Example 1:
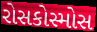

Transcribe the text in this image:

રોસકોસ્મોસ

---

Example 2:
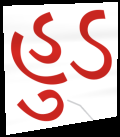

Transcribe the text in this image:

હુડ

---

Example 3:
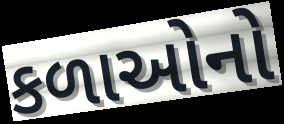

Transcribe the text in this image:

કળાઓનો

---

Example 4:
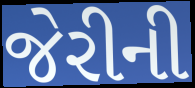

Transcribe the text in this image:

જેરીની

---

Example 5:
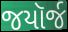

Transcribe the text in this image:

જયૉર્જ